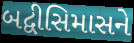
બદ્વીસિમાસને